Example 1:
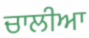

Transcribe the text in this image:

ਚਾਲੀਆ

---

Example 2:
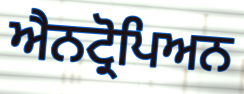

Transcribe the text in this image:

ਐਨਟ੍ਰੋਪਿਅਨ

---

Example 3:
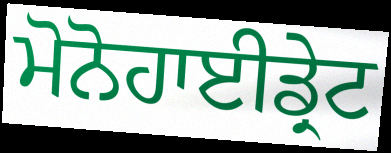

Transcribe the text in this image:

ਮੋਨੋਹਾਈਡ੍ਰੇਟ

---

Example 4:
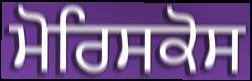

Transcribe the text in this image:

ਮੋਰਿਸਕੋਸ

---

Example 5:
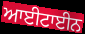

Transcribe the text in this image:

ਆਈਟਾਈਨ